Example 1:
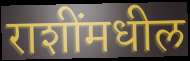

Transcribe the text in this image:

राशींमधील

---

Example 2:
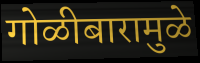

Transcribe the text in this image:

गोळीबारामुळे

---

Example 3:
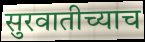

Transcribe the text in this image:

सुरवातीच्याच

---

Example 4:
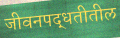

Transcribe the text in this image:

जीवनपद्धतीतील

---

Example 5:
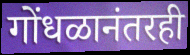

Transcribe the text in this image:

गोंधळानंतरही